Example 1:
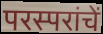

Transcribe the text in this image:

परस्परांचें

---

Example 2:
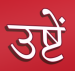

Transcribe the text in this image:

उष्टें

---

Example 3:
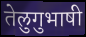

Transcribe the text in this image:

तेलुगुभाषी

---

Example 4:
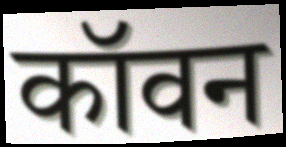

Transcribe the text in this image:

कॉवन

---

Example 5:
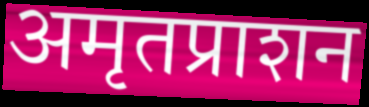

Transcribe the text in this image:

अमृतप्राशन